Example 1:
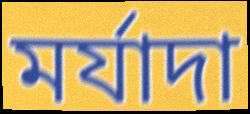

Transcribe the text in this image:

মর্যাদা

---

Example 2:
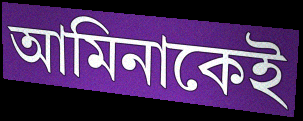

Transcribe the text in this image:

আমিনাকেই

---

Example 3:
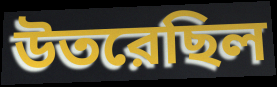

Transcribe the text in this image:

উতরেছিল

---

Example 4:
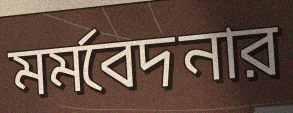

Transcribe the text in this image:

মর্মবেদনার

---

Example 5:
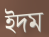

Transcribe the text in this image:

ইদম